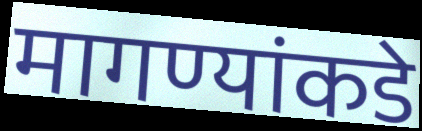
मागण्यांकडे